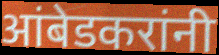
आंबेडकरांनी